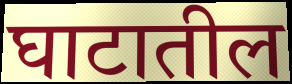
घाटातील